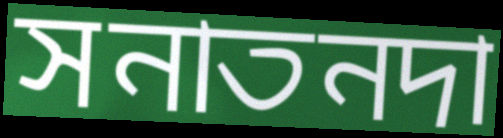
সনাতনদা